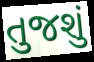
તુજશું